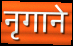
नृगाने